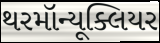
થરમૉન્યૂક્લિયર